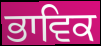
ਭਾਵਿਕ